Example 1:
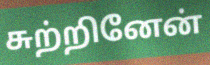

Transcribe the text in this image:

சுற்றினேன்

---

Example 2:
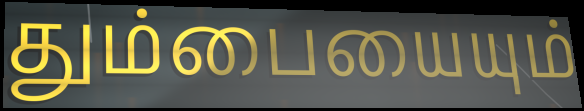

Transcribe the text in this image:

தும்பையையும்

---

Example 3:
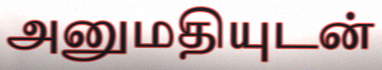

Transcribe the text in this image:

அனுமதியுடன்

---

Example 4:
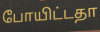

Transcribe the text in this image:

போயிட்டதா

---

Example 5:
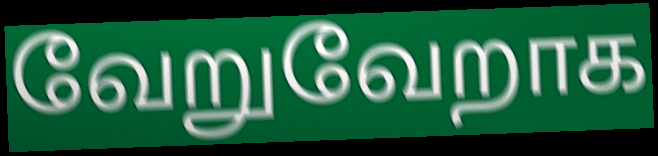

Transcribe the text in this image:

வேறுவேறாக